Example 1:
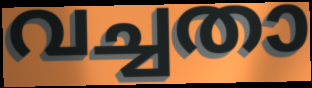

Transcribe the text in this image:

വച്ചതാ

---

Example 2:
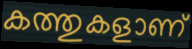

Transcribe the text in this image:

കത്തുകളാണ്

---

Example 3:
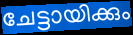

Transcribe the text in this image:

ചേട്ടായിക്കും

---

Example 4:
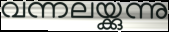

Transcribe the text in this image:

വന്നലയ്ക്കുന്നു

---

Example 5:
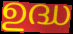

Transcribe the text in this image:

ഉദ്ധ